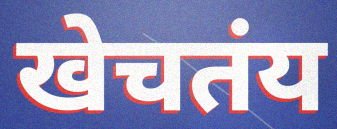
खेचतंय